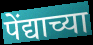
पेंद्याच्या